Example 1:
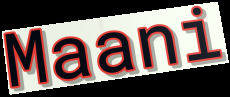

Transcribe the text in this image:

Maani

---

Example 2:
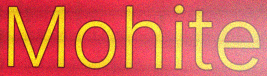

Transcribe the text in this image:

Mohite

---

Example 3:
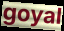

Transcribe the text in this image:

goyal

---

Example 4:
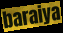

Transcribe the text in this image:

baraiya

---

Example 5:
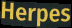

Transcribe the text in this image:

Herpes